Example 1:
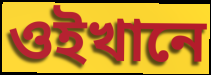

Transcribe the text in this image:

ওইখানে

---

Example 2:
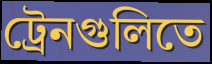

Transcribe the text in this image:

ট্রেনগুলিতে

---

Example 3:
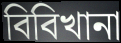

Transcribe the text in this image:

বিবিখানা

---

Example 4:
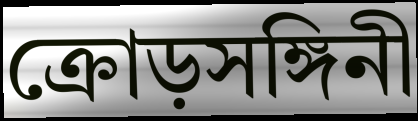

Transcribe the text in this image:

ক্রোড়সঙ্গিনী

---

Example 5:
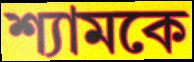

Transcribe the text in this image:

শ্যামকে